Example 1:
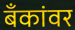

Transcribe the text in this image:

बँकांवर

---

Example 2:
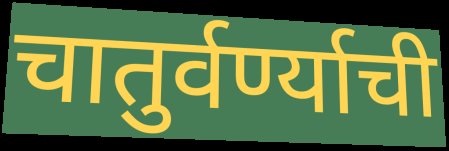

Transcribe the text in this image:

चातुर्वर्ण्याची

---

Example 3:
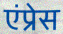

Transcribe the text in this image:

एंप्रेस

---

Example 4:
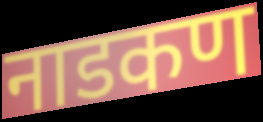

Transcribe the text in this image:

नाडकण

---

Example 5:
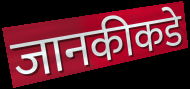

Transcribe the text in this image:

जानकीकडे